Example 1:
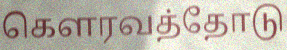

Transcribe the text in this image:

கௌரவத்தோடு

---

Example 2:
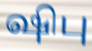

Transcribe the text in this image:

ஷிபு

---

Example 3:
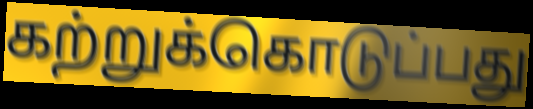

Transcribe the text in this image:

கற்றுக்கொடுப்பது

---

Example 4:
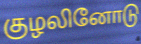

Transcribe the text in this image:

குழலினோடு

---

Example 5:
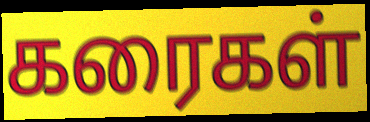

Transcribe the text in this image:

கரைகள்